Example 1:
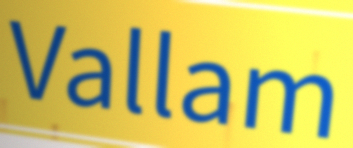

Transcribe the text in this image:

Vallam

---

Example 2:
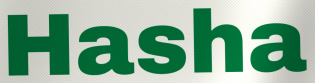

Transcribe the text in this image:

Hasha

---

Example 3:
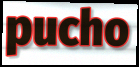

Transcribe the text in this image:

pucho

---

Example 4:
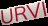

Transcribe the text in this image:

URVI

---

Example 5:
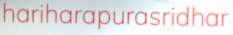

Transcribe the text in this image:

hariharapurasridhar